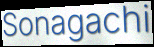
Sonagachi